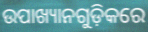
ଉପାଖ୍ୟାନଗୁଡ଼ିକରେ